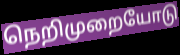
நெறிமுறையோடு